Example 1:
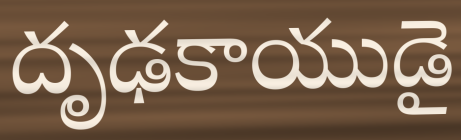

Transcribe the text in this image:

దృఢకాయుడై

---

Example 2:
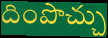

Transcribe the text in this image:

దింపొచ్చు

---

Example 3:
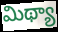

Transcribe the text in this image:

మిథ్యా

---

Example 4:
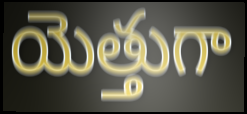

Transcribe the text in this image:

యెత్తుగా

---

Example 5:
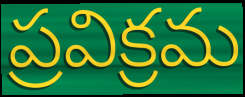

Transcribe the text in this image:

ప్రవిక్రమ